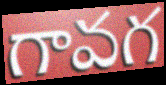
గావగ